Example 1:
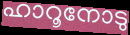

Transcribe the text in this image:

ഹാറൂനോടു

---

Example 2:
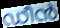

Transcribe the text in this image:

ഡീൻ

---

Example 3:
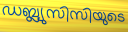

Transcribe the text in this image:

ഡബ്ല്യുസിസിയുടെ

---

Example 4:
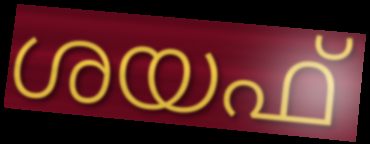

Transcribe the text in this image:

ശയഫ്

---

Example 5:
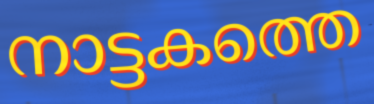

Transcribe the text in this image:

നാട്ടകത്തെ